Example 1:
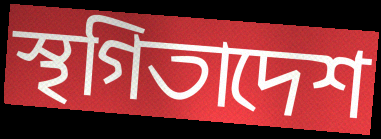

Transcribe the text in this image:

স্থগিতাদেশ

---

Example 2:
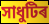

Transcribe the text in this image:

সাধুটিৰ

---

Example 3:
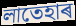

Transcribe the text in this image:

লাতেহাৰ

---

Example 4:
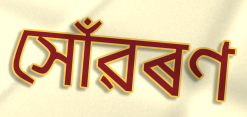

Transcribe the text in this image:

সোঁৱৰণ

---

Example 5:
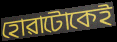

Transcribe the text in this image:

হোৱাটোকেই